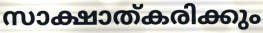
സാക്ഷാത്കരിക്കും